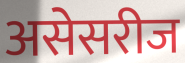
असेसरीज